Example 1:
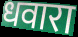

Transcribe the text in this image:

धवारा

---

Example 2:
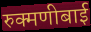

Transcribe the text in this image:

रुक्मणीबाई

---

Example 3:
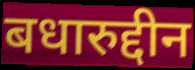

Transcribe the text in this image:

बधारुद्दीन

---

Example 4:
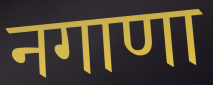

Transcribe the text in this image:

नगाणा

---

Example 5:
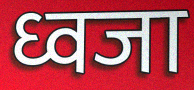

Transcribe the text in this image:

ध्वजा